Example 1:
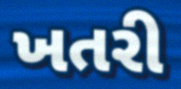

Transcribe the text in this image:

ખતરી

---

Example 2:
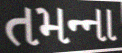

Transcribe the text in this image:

તમન્‍ના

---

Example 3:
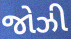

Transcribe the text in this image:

જોઝી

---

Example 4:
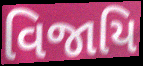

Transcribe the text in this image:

વિજાયિ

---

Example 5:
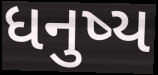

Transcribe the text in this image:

ધનુષ્ય